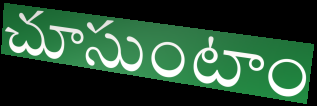
చూసుంటాం